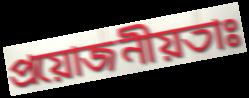
প্ৰয়োজনীয়তাঃ